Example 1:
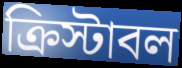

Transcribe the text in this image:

ক্রিস্টাবল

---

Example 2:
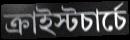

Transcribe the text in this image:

ক্রাইস্টচার্চে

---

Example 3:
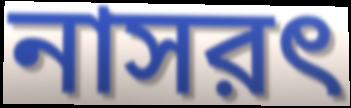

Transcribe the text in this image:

নাসরৎ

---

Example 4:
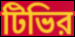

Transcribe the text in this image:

টিভির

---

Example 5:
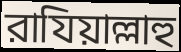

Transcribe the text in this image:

রাযিয়াল্লাহু